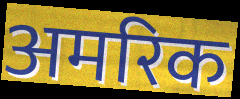
अमरिक